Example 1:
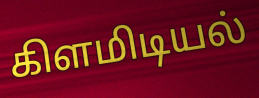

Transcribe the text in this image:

கிளமிடியல்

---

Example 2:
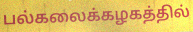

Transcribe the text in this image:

பல்கலைக்கழகத்தில்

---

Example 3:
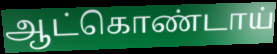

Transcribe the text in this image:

ஆட்கொண்டாய்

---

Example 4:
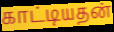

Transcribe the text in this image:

காட்டியதன்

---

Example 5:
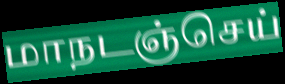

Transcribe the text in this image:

மாநடஞ்செய்